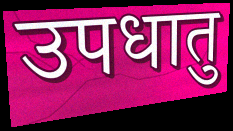
उपधातु